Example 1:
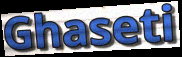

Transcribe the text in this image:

Ghaseti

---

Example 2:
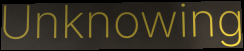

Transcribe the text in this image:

Unknowing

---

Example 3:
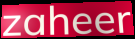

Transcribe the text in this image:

zaheer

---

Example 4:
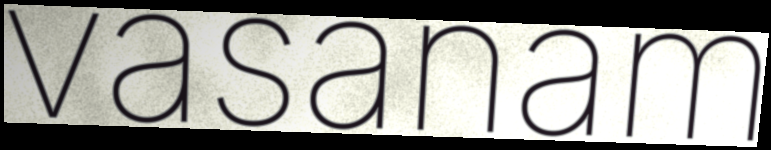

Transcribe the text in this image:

vasanam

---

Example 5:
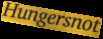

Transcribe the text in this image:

Hungersnot